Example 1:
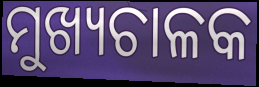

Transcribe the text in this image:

ମୁଖ୍ୟଚାଳକ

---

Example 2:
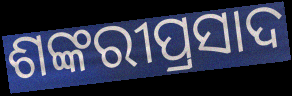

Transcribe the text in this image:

ଶଙ୍କରୀପ୍ରସାଦ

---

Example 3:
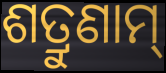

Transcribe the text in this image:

ଶତ୍ରୁଣାମ୍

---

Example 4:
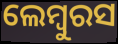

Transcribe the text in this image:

ଲେମ୍ବୁରସ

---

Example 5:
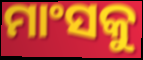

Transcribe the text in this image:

ମାଂସକୁ